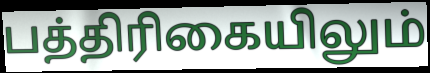
பத்திரிகையிலும்